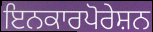
ਇਨਕਾਰਪੋਰੇਸ਼ਨ